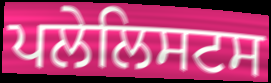
ਪਲੇਲਿਸਟਸ